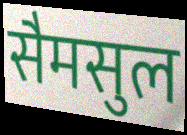
सैमसुल